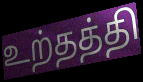
உற்தத்தி